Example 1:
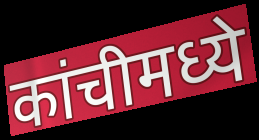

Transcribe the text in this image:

कांचीमध्ये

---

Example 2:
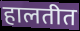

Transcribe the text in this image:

हालतीत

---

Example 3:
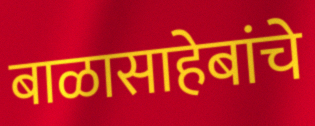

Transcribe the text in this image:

बाळासाहेबांचे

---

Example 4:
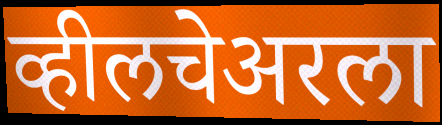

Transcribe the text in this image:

व्हीलचेअरला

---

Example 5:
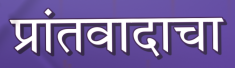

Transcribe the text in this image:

प्रांतवादाचा